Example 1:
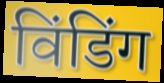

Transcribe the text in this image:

विंडिंग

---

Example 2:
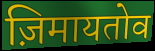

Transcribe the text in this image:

ज़िमायतोव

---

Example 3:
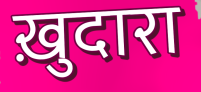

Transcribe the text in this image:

ख़ुदारा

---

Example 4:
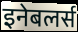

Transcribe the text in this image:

इनेबलर्स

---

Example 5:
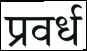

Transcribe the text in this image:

प्रवर्ध